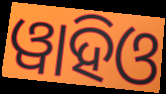
ୱାହିଓ